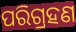
ପରିଗ୍ରହଣ